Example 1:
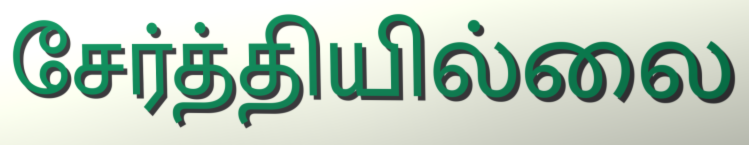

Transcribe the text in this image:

சேர்த்தியில்லை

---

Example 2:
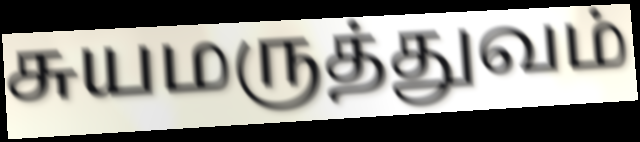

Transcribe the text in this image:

சுயமருத்துவம்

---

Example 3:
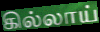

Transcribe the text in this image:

கில்லாய்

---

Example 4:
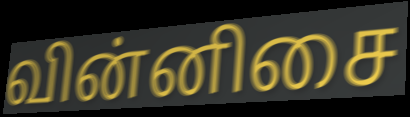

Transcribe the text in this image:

வின்னிசை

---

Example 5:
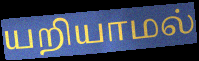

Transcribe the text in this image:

யறியாமல்